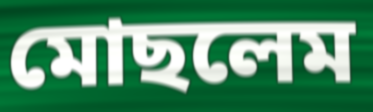
মোছলেম